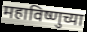
महाविष्णुच्या